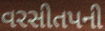
વરસીતપની